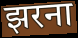
झरना